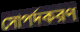
সোপর্দকরণ